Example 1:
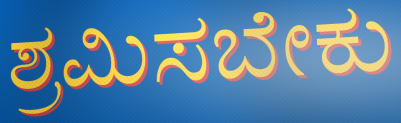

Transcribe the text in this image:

ಶ್ರಮಿಸಬೇಕು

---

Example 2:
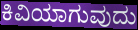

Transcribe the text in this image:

ಕಿವಿಯಾಗುವುದು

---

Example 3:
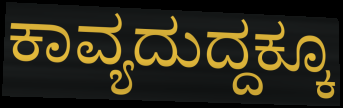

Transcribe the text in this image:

ಕಾವ್ಯದುದ್ದಕ್ಕೂ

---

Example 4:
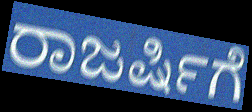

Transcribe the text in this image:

ರಾಜರ್ಷಿಗೆ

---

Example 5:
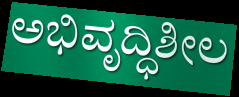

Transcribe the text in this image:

ಅಭಿವೃದ್ಧಿಶೀಲ